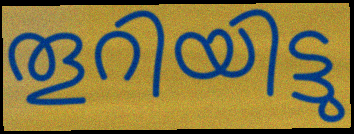
തൂറിയിട്ടു